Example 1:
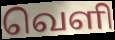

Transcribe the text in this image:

வெளி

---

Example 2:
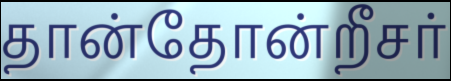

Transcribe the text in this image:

தான்தோன்றீசர்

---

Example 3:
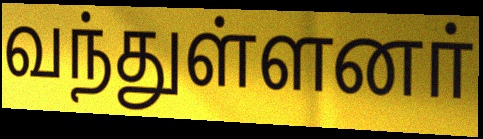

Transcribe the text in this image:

வந்துள்ளனர்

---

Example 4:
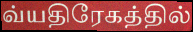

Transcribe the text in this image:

வ்யதிரேகத்தில்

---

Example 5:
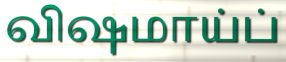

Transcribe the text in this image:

விஷமாய்ப்